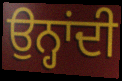
ਉਨ੍ਹਾਂਦੀ